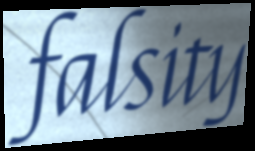
falsity